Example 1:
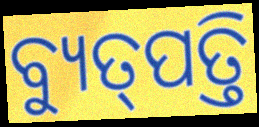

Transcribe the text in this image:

ବ୍ୟୁତ୍‌ପତ୍ତି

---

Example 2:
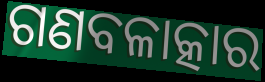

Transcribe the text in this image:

ଗଣବଳାତ୍କାର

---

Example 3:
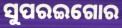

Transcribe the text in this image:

ସୁପରଇଗୋର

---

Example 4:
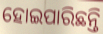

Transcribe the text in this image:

ହୋଇପାରିଛନ୍ତି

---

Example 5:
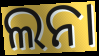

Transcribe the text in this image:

ଲନା